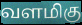
வளமிகு